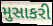
મુસાકરી